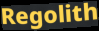
Regolith